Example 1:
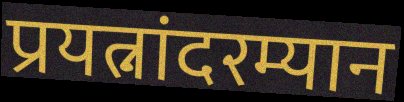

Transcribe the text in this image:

प्रयत्नांदरम्यान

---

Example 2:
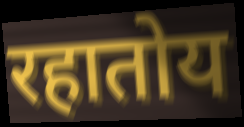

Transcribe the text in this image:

रहातोय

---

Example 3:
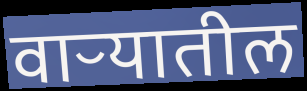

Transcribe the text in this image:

वाऱ्यातील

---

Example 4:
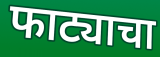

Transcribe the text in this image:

फाट्याचा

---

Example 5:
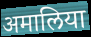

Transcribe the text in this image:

अमालिया